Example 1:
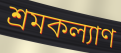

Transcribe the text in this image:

শ্রমকল্যাণ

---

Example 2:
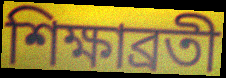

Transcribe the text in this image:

শিক্ষাব্রতী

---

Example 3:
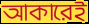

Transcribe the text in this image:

আকারেই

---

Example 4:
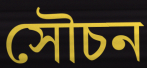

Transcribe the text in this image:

সৌচন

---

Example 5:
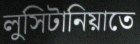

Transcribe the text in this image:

লুসিটানিয়াতে